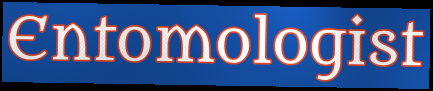
Entomologist